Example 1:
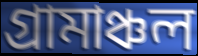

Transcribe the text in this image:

গ্ৰামাঞ্চল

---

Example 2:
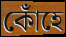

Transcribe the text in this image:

কোঁহে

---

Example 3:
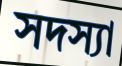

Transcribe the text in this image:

সদস্যা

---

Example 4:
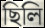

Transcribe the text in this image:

ছিলি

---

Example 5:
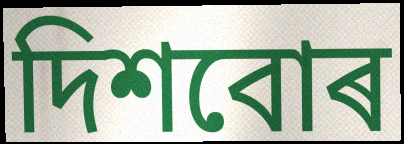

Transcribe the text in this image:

দিশবোৰ